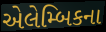
એલેમ્બિકના